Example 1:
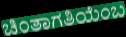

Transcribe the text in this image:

ಚಿಂತಾಗತಿಯೆಂಬ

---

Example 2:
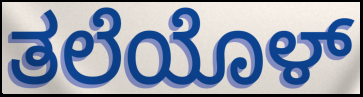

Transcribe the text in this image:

ತಲೆಯೊಳ್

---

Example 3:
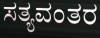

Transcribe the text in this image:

ಸತ್ಯವಂತರ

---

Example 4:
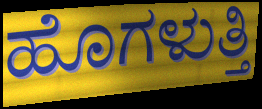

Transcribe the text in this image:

ಹೊಗಳುತ್ತಿ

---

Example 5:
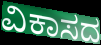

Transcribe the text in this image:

ವಿಕಾಸದ